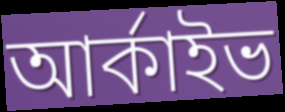
আৰ্কাইভ